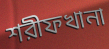
শরীফখানা